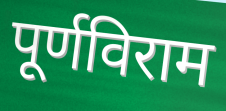
पूर्णविराम